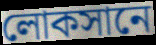
লোকসানে